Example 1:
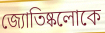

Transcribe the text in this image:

জ্যোতিষ্কলোকে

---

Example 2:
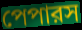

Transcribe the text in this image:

পেপারস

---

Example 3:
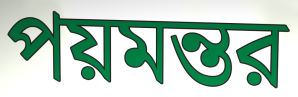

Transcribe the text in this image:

পয়মন্তর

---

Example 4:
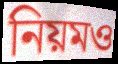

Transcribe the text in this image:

নিয়মও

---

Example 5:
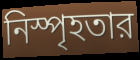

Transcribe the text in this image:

নিস্পৃহতার